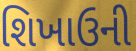
શિખાઉની